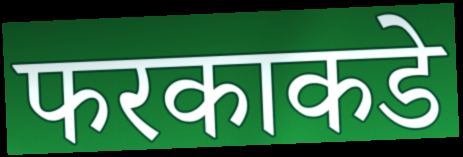
फरकाकडे